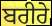
ਬਰੀਰੇ